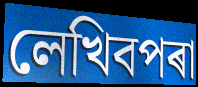
লেখিবপৰা